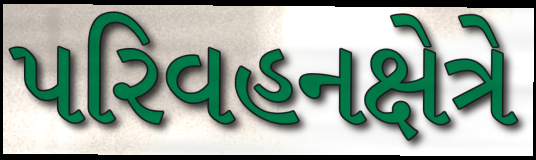
પરિવહનક્ષેત્રે